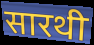
सारथी